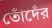
তোঁদেঁর